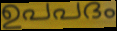
ഉപപദം